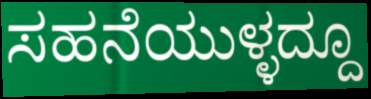
ಸಹನೆಯುಳ್ಳದ್ದೂ